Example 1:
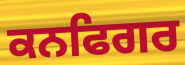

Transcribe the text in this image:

ਕਨਫਿਗਰ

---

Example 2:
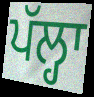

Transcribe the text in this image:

ਪੱਲ੍ਹਾ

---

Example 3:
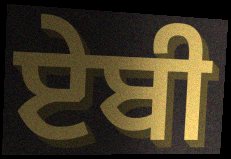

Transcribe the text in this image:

ਏਬੀ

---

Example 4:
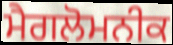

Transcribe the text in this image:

ਮੈਗਲੋਮਨੀਕ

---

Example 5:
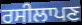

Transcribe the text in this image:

ਰਸੀਲਾਪਣ